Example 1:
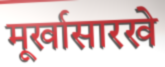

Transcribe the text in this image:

मूर्खासारखे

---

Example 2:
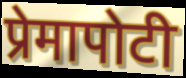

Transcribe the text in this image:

प्रेमापोटी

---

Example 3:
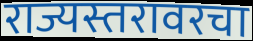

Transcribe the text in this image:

राज्यस्तरावरचा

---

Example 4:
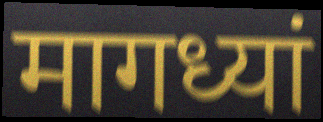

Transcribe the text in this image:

मागध्यां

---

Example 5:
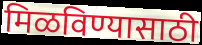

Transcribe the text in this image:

मिळविण्यासाठी